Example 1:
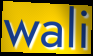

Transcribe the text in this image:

wali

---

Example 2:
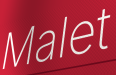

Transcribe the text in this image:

Malet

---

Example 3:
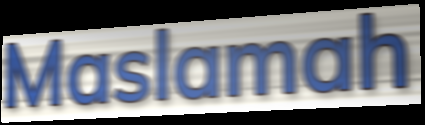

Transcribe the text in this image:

Maslamah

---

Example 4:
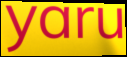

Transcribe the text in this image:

yaru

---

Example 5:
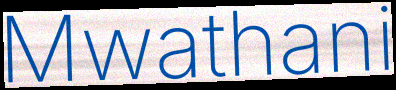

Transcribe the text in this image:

Mwathani